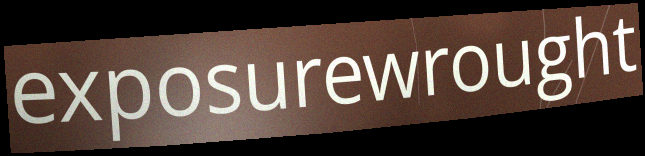
exposurewrought